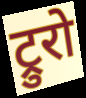
ट्रुरो